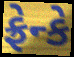
ફ્રેન્કે